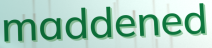
maddened